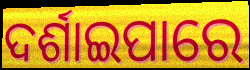
ଦର୍ଶାଇପାରେ